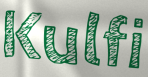
Kulfi